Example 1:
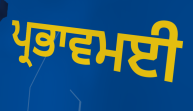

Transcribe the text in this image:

ਪ੍ਰਭਾਵਮਈ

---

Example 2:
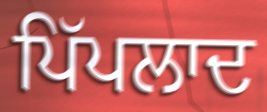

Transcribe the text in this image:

ਪਿੱਪਲਾਦ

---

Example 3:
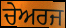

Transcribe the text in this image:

ਚੇਅਰਜ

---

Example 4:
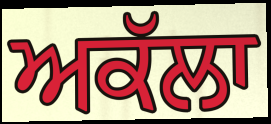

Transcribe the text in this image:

ਅਕੱਲਾ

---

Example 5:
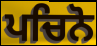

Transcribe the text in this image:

ਪਚਿਨੋ